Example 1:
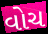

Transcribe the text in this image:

વોચ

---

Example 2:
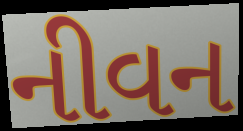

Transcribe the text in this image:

નીવન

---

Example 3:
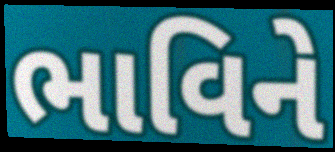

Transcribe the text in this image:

ભાવિને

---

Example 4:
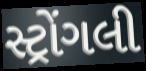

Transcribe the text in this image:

સ્ટ્રોંગલી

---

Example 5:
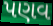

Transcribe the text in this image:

પણવ